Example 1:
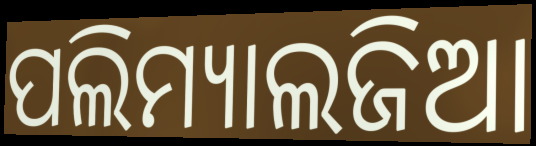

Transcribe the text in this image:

ପଲିମ୍ୟାଲଜିଆ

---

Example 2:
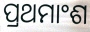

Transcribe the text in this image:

ପ୍ରଥମାଂଶ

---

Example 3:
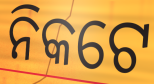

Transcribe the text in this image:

ନିକଟେ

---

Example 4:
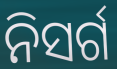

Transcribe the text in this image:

ନିସର୍ଗ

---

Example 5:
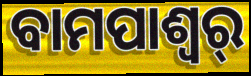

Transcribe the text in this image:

ବାମପାଶ୍ୱର୍